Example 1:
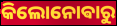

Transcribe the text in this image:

କିଲୋନୋଵାରୁ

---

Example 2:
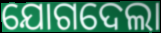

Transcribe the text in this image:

ଯୋଗଦେଲା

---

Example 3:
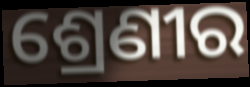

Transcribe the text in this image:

ଶ୍ରେଣୀର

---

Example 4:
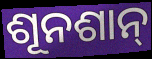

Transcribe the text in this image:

ଶୂନଶାନ୍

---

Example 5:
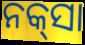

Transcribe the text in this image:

ନକ୍‍ସା